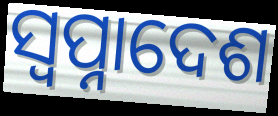
ସ୍ବପ୍ନାଦେଶ